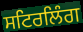
ਸਟਿਰਲਿੰਗ